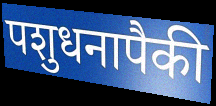
पशुधनापैकी